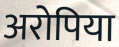
अरोपिया